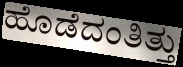
ಹೊಡೆದಂತಿತ್ತು